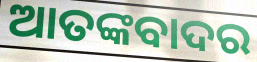
ଆତଙ୍କବାଦର